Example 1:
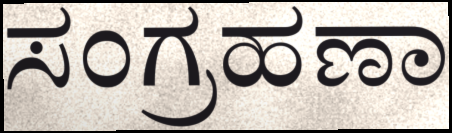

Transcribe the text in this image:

ಸಂಗ್ರಹಣಾ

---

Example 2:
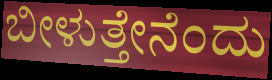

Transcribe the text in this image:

ಬೀಳುತ್ತೇನೆಂದು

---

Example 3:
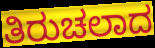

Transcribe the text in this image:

ತಿರುಚಲಾದ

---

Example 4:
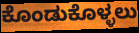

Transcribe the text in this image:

ಕೊಂಡುಕೊಳ್ಳಲು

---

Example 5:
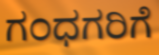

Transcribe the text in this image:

ಗಂಧಗರಿಗೆ